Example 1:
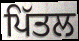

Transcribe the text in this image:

ਪਿੱਤਲ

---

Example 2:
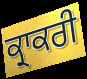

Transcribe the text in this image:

ਕ੍ਰਾਕਰੀ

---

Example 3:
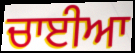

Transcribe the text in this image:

ਚਾਈਆ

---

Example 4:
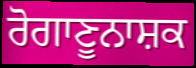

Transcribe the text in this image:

ਰੋਗਾਣੂਨਾਸ਼ਕ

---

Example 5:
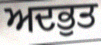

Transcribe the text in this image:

ਅਦਭੁਤ